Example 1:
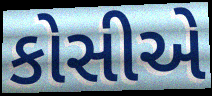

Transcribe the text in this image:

કોસીએ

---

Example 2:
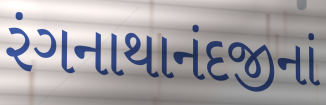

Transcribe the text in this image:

રંગનાથાનંદજીનાં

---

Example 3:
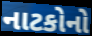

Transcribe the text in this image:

નાટકોનો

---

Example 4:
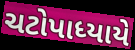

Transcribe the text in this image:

ચટોપાધ્યાયે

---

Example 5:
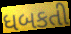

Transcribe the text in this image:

ધબકતી